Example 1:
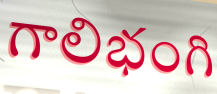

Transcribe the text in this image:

గాలిభంగి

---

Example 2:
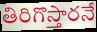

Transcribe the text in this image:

తిరిగొస్తారనే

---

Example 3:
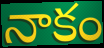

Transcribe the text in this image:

నాకం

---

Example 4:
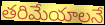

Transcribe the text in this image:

తరిమేయాలనే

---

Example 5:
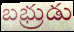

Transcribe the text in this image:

బభ్రుడు